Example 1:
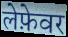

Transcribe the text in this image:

लेफ़ेवर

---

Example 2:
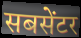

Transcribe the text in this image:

सबसेंटर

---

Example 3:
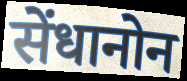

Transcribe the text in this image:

सेंधानोन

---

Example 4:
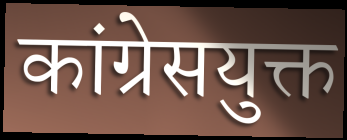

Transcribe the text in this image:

कांग्रेसयुक्त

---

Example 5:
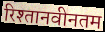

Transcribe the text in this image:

रिश्तानवीनतम